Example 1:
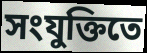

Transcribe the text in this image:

সংযুক্তিতে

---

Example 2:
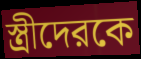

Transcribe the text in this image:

স্ত্রীদেরকে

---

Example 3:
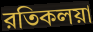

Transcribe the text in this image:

রতিকলয়া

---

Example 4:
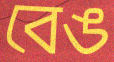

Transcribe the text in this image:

বেঙ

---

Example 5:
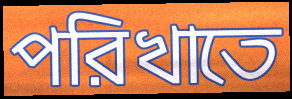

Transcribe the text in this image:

পরিখাতে